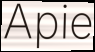
Apie